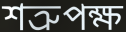
শত্রুপক্ষ